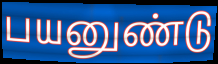
பயனுண்டு